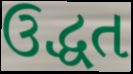
ઉદ્ધત